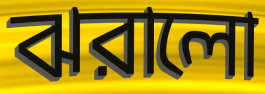
ঝরালো